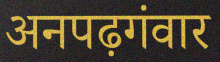
अनपढ़गंवार